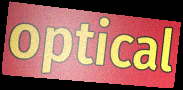
optical